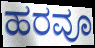
ಹರವೂ